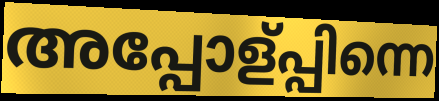
അപ്പോള്പ്പിന്നെ